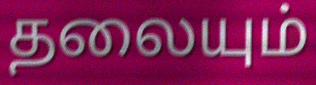
தலையும்